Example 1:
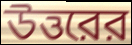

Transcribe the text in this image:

উত্তরের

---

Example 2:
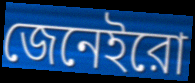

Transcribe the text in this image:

জেনেইরো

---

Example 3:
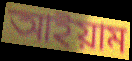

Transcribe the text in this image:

আইয়াম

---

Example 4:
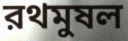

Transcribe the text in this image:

রথমুষল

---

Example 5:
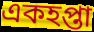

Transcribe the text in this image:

একহপ্তা